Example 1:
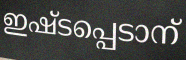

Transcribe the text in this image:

ഇഷ്ടപ്പെടാന്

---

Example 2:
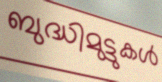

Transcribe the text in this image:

ബുദ്ധിമുട്ടുകൾ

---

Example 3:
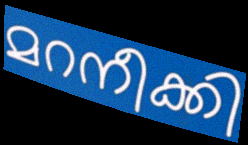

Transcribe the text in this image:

മറനീക്കി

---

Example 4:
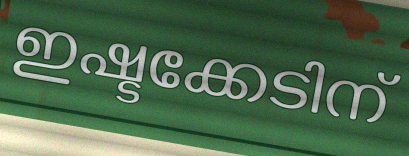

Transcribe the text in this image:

ഇഷ്ടക്കേടിന്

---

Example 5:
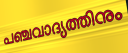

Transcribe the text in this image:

പഞ്ചവാദ്യത്തിനും